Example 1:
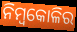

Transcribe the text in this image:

ନିମ୍ବକୋଳିର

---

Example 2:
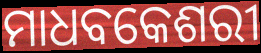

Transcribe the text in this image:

ମାଧବକେଶରୀ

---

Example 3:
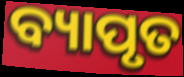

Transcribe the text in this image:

ବ୍ୟାପୃତ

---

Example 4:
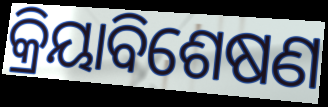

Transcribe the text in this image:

କ୍ରିୟାବିଶେଷଣ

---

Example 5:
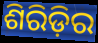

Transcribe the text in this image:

ଶିରିଡ଼ିର